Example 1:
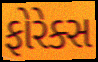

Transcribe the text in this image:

ફોરેક્સ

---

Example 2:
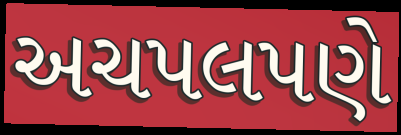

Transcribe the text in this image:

અચપલપણે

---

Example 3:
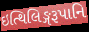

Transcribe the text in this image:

ઇત્થિલિઙ્ગરૂપાનિ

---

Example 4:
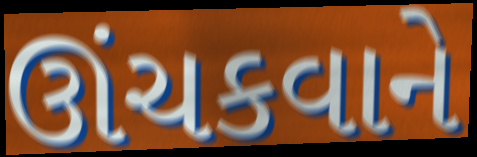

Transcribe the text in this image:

ઊંચકવાને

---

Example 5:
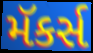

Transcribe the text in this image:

મૅકર્સ